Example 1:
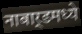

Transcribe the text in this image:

नाबार्डमध्ये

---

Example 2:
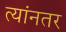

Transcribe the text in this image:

त्यांनतर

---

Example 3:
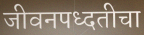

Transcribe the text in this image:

जीवनपध्दतीचा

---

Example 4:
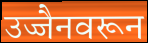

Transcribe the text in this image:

उज्जैनवरून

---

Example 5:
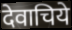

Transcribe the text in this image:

देवाचिये